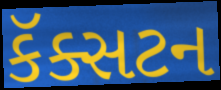
કૅક્સટન